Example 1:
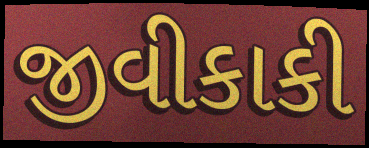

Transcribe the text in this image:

જીવીકાકી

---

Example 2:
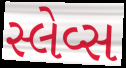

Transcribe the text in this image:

સ્લેવ્સ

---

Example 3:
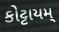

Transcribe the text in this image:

કોટ્ટાયમ્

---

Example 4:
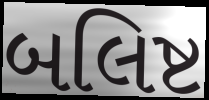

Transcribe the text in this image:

બલિષ્ટ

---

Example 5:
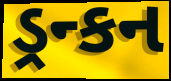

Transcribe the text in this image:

ડ્રન્કન